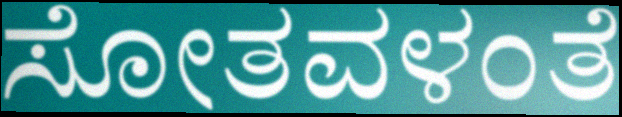
ಸೋತವಳಂತೆ